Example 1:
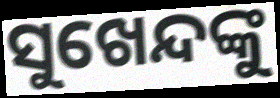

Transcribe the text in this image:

ସୁଖେନ୍ଦଙ୍କୁ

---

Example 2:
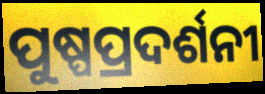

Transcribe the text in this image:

ପୁଷ୍ପପ୍ରଦର୍ଶନୀ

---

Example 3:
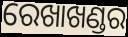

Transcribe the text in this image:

ରେଖାଖଣ୍ଡର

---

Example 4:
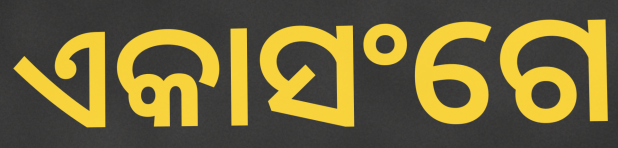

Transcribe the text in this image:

ଏକାସଂଗେ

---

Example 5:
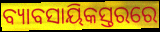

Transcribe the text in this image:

ବ୍ୟାବସାୟିକସ୍ତରରେ